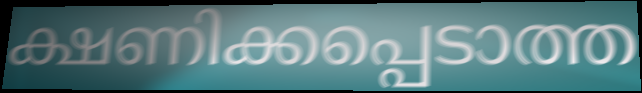
ക്ഷണിക്കപ്പെടാത്ത